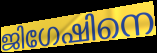
ജിഗേഷിനെ